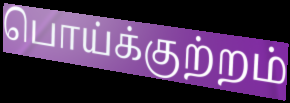
பொய்க்குற்றம்